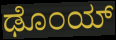
ಢೊಂಯ್